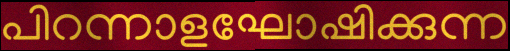
പിറന്നാളഘോഷിക്കുന്ന